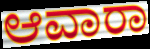
ಆವಾರಾ